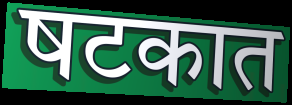
षटकात